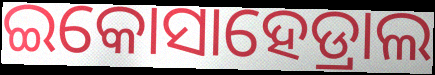
ଇକୋସାହେଡ୍ରାଲ